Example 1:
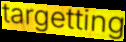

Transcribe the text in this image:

targetting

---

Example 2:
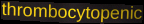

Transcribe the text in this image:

thrombocytopenic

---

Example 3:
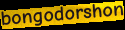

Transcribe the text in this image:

bongodorshon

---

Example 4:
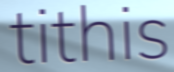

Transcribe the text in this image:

tithis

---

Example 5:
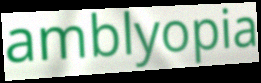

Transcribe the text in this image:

amblyopia